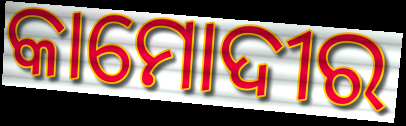
କାମୋଦୀର